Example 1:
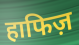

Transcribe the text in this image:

हाफिज़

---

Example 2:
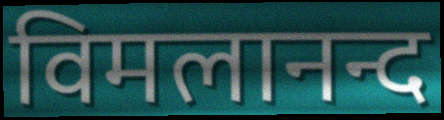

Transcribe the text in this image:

विमलानन्द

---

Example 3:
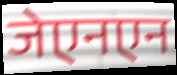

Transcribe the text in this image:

जेएनएन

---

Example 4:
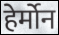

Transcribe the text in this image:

हेर्मोन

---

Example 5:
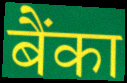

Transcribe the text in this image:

बैंका